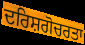
ਦਰਿਸ਼ਗੋਚਰਤਾ